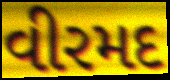
વીરમદ